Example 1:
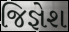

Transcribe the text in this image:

જિજ્ઞેશ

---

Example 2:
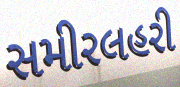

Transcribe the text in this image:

સમીરલહરી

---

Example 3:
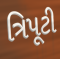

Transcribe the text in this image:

ત્રિપૂટી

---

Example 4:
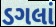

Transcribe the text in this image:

ડગલાં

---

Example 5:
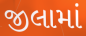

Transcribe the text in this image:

જીલામાં